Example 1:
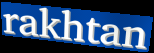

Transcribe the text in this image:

rakhtan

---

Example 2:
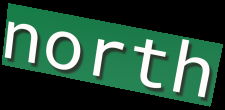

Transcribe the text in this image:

north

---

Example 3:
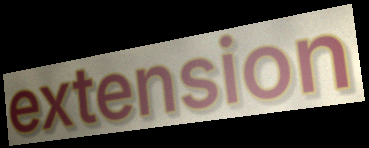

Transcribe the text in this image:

extension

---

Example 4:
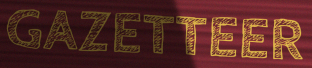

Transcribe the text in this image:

GAZETTEER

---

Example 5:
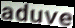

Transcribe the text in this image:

aduve